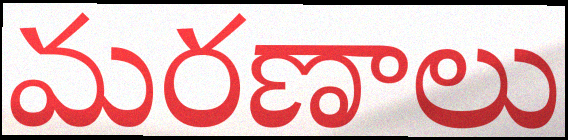
మరణాలు